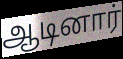
ஆடினார்